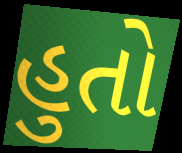
હુતો